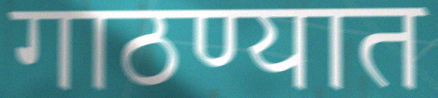
गाठण्यात